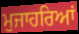
ਮੁਜਾਹਰਿਆਂ